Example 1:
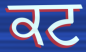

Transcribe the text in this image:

ਕਟ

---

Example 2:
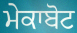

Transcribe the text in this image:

ਮੇਕਾਬੋਟ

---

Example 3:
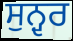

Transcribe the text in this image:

ਸੁਨ੍ਦਰ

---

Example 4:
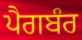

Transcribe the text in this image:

ਪੈਗਬੰਰ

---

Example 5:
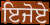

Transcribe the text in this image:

ਇਜੋਏ